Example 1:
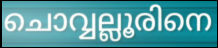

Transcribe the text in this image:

ചൊവ്വല്ലൂരിനെ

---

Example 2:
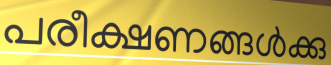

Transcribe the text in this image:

പരീക്ഷണങ്ങൾക്കു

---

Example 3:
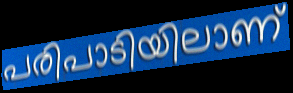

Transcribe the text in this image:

പരിപാടിയിലാണ്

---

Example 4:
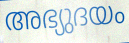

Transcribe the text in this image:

അഭ്യുദയം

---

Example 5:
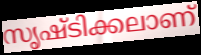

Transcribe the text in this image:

സൃഷ്ടിക്കലാണ്